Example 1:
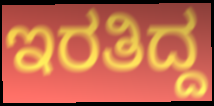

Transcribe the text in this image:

ಇರತಿದ್ದ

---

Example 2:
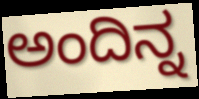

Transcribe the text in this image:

ಅಂದಿನ್ನ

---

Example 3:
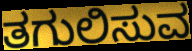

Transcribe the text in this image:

ತಗುಲಿಸುವ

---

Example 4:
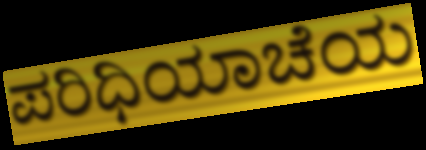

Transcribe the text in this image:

ಪರಿಧಿಯಾಚೆಯ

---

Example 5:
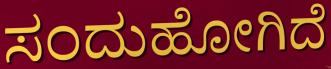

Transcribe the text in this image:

ಸಂದುಹೋಗಿದೆ